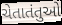
ચેતાતંતુઓ